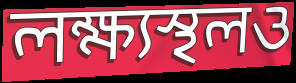
লক্ষ্যস্থলও